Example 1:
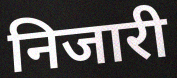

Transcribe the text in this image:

निजारी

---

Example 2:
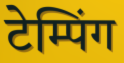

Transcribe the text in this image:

टेम्पिंग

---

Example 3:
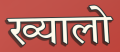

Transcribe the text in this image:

ख्यालो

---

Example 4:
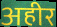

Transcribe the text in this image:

अहीर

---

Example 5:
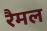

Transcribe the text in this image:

रैमल